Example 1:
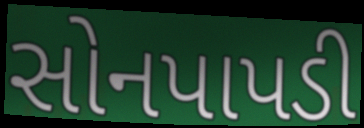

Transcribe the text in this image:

સોનપાપડી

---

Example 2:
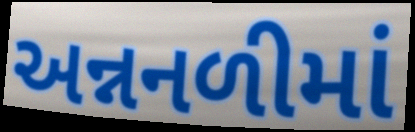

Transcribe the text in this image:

અન્નનળીમાં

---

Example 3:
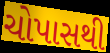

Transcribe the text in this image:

ચોપાસથી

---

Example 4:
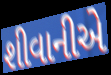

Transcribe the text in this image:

શીવાનીએ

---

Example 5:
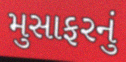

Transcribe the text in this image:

મુસાફરનું